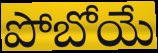
పోబోయే